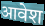
आवेश